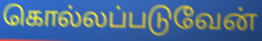
கொல்லப்படுவேன்